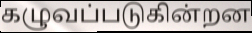
கழுவப்படுகின்றன